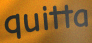
quitta